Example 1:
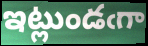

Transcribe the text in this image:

ఇట్లుండఁగా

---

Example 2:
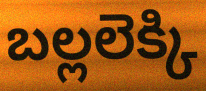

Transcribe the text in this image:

బల్లలెక్కి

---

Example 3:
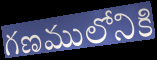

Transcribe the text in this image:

గణములోనికి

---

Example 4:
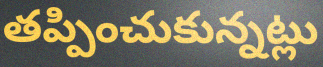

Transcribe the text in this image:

తప్పించుకున్నట్లు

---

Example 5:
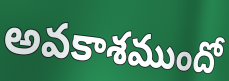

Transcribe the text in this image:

అవకాశముందో